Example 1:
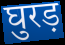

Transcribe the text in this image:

घुरड़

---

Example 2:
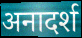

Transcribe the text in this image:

अनादर्श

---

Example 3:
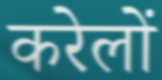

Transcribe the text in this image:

करेलों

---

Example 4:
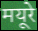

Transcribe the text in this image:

मयूरे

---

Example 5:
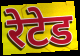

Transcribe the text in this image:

रेटेड